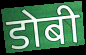
डोबी